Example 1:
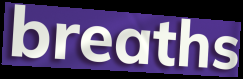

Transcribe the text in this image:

breaths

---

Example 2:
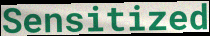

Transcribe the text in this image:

Sensitized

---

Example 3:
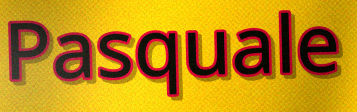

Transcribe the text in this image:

Pasquale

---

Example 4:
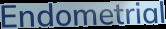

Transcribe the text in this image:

Endometrial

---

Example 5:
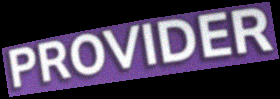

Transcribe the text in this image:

PROVIDER